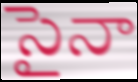
సైనా